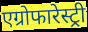
एग्रोफारेस्ट्री